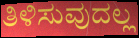
ತಿಳಿಸುವುದಲ್ಲ